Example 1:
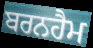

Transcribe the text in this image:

ਬਰਨਹੈਮ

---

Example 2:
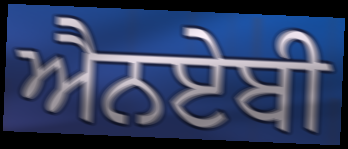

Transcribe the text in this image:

ਐਨਏਬੀ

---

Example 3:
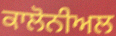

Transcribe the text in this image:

ਕਾਲੋਨੀਅਲ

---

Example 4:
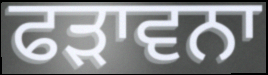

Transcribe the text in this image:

ਫੜਾਵਨਾ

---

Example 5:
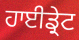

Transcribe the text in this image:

ਹਾਈਡ੍ਰੇਟ